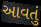
આવતું